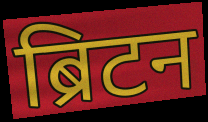
ब्रिटन